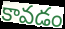
కావడం